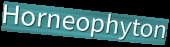
Horneophyton